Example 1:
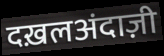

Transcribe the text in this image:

दख़लअंदाज़ी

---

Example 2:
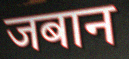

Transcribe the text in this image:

जबान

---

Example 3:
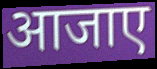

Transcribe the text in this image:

आजाए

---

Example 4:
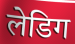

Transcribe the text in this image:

लेडिग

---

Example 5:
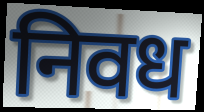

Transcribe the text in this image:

निवध